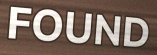
FOUND